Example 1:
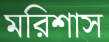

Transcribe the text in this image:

মরিশাস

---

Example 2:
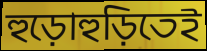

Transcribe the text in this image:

হুড়োহুড়িতেই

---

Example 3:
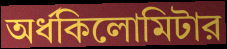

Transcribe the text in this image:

অর্ধকিলোমিটার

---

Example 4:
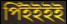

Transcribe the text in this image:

পিঁইইইই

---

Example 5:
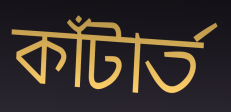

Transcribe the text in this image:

কাঁটার্ত